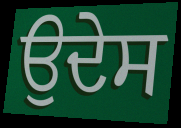
ਉਦੇਸ